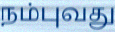
நம்புவது